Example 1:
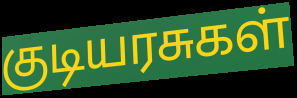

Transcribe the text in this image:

குடியரசுகள்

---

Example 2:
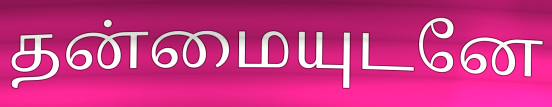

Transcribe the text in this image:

தன்மையுடனே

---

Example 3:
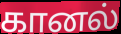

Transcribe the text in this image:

கானல்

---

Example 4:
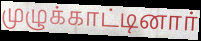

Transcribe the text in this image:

முழுக்காட்டினார்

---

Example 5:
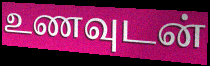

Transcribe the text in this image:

உணவுடன்